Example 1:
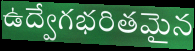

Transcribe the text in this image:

ఉద్వేగభరితమైన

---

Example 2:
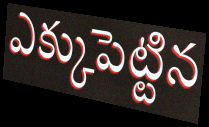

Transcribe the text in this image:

ఎక్కుపెట్టిన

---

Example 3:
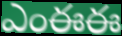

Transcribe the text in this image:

ఎంఈఈ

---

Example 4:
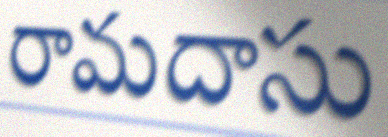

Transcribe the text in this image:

రామదాసు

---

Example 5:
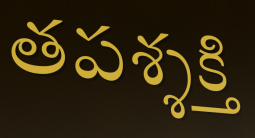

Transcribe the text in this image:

తపశ్శక్తి